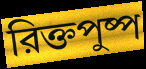
রিক্তপুষ্প